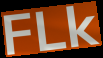
FLk